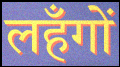
लहँगों